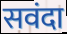
सवंदा